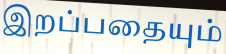
இறப்பதையும்